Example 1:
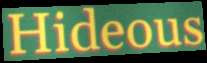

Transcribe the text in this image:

Hideous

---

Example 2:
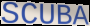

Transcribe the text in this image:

SCUBA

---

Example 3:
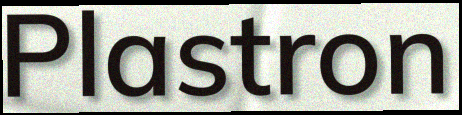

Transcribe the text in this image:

Plastron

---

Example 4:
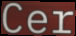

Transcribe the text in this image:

Cer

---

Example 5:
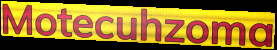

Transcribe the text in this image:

Motecuhzoma